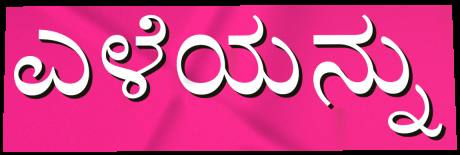
ಎಳೆಯನ್ನು